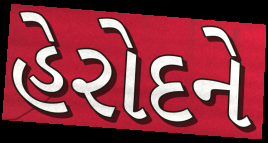
હેરોદને